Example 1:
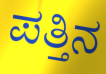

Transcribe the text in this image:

ಪತ್ತಿನ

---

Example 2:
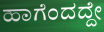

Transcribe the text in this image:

ಹಾಗೆಂದದ್ದೇ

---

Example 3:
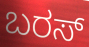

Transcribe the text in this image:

ಬರಸ್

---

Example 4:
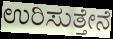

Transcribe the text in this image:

ಉರಿಸುತ್ತೇನೆ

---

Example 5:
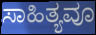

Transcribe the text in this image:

ಸಾಹಿತ್ಯವೂ